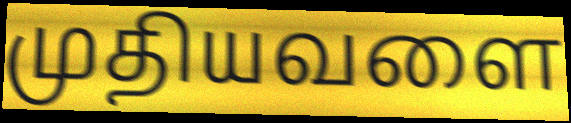
முதியவளை